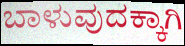
ಬಾಳುವುದಕ್ಕಾಗಿ